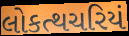
લોકત્થચરિયં